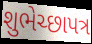
શુભેચ્છાપત્ર